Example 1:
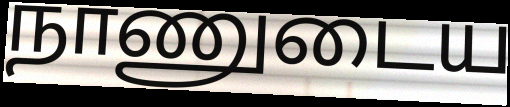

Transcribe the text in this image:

நாணுடைய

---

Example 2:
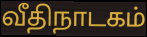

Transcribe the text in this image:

வீதிநாடகம்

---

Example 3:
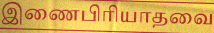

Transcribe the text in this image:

இணைபிரியாதவை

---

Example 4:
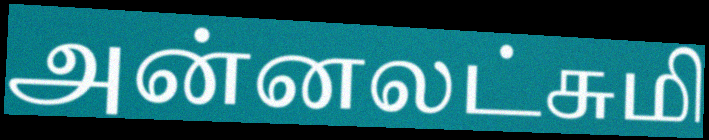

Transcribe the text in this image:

அன்னலட்சுமி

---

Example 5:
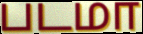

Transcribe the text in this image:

படமா